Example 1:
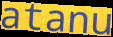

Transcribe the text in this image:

atanu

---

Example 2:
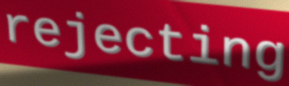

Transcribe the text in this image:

rejecting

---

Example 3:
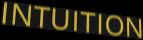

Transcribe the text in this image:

INTUITION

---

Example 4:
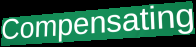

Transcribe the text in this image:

Compensating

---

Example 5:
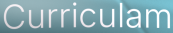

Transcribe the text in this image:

Curriculam